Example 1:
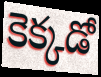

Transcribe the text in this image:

కెక్కడో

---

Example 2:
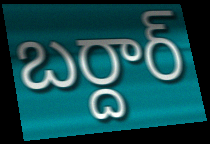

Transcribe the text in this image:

బర్దార్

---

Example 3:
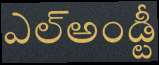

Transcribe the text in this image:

ఎల్అండ్టీ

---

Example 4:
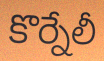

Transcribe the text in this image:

కొర్నేలీ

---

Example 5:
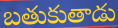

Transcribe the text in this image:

బతుకుతాడు